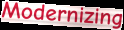
Modernizing